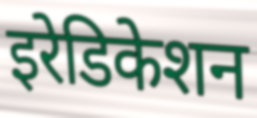
इरेडिकेशन